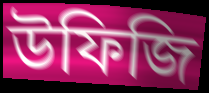
উফিজি